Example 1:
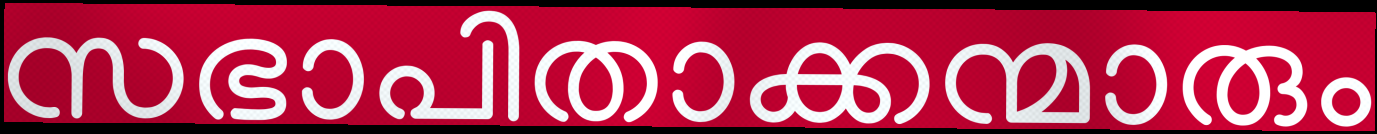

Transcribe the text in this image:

സഭാപിതാക്കന്മാരും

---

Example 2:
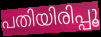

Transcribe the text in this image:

പതിയിരിപ്പൂ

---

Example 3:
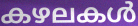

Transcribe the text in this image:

കഴലകൾ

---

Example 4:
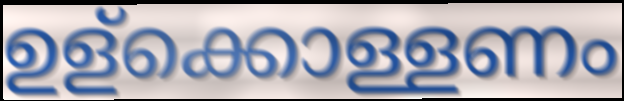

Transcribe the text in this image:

ഉള്ക്കൊള്ളണം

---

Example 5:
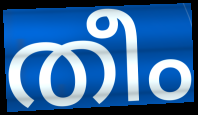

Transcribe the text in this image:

തീം